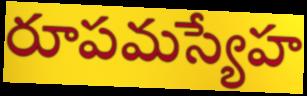
రూపమస్యేహ